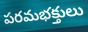
పరమభక్తులు